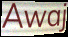
Awaj